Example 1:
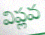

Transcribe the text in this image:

విప్లవ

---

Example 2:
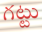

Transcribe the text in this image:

గట్టు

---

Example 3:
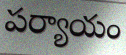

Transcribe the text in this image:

పర్యాయం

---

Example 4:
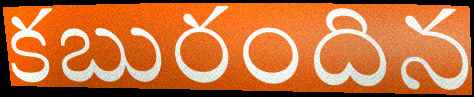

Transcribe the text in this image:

కబురందిన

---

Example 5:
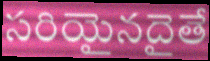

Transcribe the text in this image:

సరియైనదైతే